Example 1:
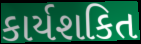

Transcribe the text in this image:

કાર્યશકિત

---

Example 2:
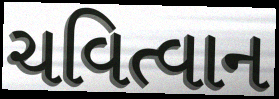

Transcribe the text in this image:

ચવિત્વાન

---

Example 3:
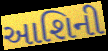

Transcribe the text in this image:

આશિની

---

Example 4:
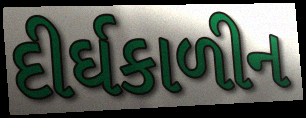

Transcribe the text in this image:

દીર્ઘકાળીન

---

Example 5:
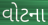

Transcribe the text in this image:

વોટના